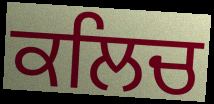
ਕਲਿਚ